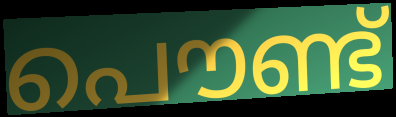
പൌണ്ട്